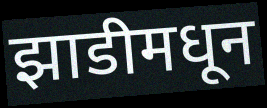
झाडीमधून